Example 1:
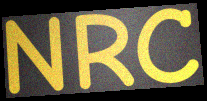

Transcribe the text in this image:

NRC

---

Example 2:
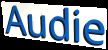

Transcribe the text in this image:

Audie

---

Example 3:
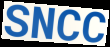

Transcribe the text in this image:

SNCC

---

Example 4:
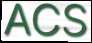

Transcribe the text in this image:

ACS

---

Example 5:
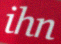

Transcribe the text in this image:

ihn